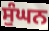
ਸੁੰਘਨ